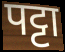
पट्टा